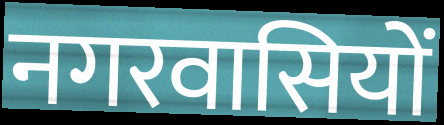
नगरवासियों